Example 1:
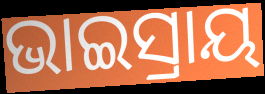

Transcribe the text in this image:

ଭାଇସ୍ରାୟ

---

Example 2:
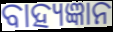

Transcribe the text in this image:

ବାହ୍ୟଜ୍ଞାନ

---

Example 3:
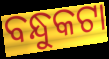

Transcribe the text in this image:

ବନ୍ଧୁକଟା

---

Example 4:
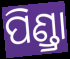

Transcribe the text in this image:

ପିଣ୍ଡ୍ରା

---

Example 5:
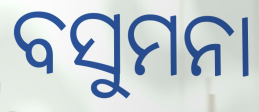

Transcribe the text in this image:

ବସୁମନା